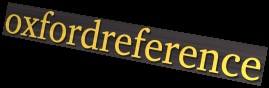
oxfordreference